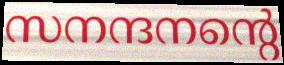
സനന്ദനന്റെ